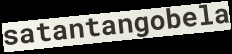
satantangobela